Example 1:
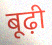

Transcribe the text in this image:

बूढ़ी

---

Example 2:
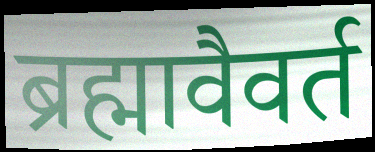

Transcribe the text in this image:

ब्रह्मावैवर्त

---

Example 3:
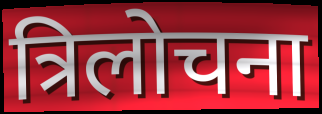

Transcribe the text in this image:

त्रिलोचना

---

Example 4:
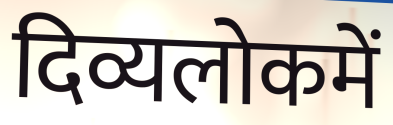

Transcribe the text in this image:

दिव्यलोकमें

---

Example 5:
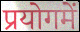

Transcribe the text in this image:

प्रयोगमें